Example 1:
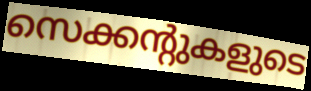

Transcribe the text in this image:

സെക്കന്റുകളുടെ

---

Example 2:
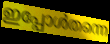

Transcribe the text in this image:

ഇപ്പോൾതന്നെ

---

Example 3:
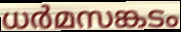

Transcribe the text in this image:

ധർമസങ്കടം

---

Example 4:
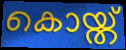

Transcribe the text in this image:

കൊയ്ത്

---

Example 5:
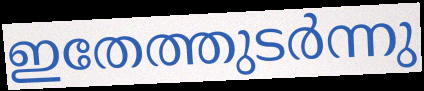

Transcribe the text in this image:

ഇതേത്തുടർന്നു